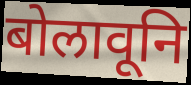
बोलावूनि